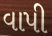
વાપી